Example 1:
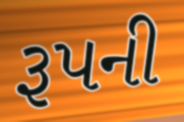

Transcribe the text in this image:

રૂપની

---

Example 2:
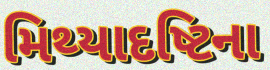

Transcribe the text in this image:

મિથ્યાદષ્ટિના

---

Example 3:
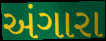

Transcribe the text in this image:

અંગારા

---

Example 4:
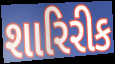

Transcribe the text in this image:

શારિરીક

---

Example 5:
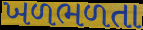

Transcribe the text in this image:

ખળભળતા